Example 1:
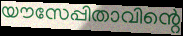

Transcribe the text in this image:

യൗസേപ്പിതാവിന്റെ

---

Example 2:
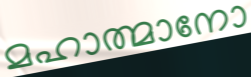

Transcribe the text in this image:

മഹാത്മാനോ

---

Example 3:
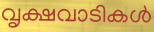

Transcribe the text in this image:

വൃക്ഷവാടികൾ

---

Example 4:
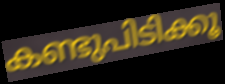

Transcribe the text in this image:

കണ്ടുപിടിക്കൂ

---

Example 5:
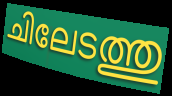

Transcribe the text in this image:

ചിലേടത്തു